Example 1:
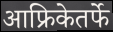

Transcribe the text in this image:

आफ्रिकेतर्फे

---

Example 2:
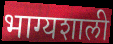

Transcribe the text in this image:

भाग्यशाली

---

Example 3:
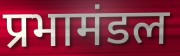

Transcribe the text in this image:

प्रभामंडल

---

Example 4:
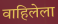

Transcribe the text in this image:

वाहिलेला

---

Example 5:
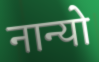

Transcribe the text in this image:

नान्यो